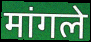
मांगले